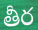
తీర